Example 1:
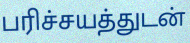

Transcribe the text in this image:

பரிச்சயத்துடன்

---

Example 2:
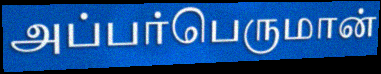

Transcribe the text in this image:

அப்பர்பெருமான்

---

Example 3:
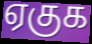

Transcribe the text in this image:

ஏகுக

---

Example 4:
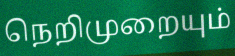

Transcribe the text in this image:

நெறிமுறையும்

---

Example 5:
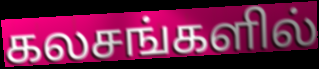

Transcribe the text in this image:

கலசங்களில்